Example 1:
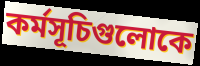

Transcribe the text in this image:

কর্মসূচিগুলোকে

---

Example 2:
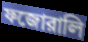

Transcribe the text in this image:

ফজোরালি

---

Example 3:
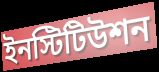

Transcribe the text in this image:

ইনস্টিটিউশন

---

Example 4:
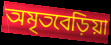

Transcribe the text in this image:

অমৃতবেড়িয়া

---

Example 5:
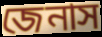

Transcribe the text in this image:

জেনাস